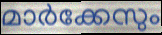
മാർക്കേസും